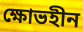
ক্ষোভহীন